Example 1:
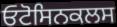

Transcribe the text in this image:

ਓਟੋਸਿਨਕਲਸ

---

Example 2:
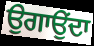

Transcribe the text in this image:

ਉਗਾਉਂਦਾ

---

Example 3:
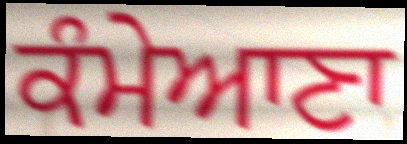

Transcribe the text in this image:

ਕੰਮੇਆਣਾ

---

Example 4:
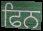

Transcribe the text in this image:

ਫਿਨ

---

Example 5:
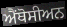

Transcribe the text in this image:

ਐਂਥੋਸੀਅਨ